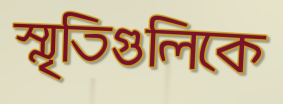
স্মৃতিগুলিকে